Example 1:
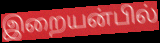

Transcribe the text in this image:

இறையன்பில்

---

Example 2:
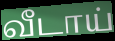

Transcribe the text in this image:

வீடாய்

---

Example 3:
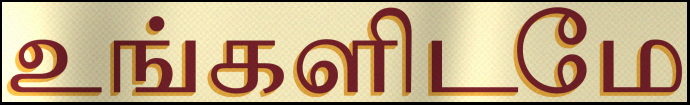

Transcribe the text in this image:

உங்களிடமே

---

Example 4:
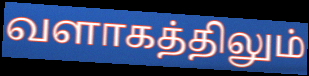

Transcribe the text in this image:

வளாகத்திலும்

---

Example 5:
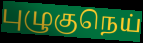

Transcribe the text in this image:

புழுகுநெய்